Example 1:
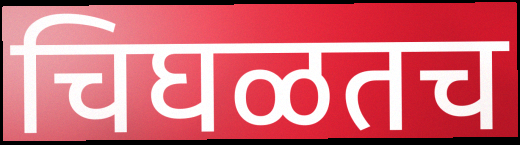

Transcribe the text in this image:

चिघळतच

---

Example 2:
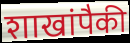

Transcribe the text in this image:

शाखांपैकी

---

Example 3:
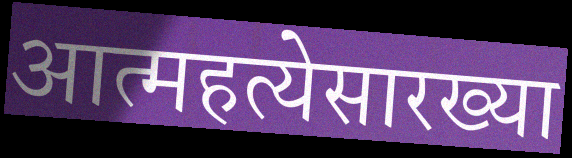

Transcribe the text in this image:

आत्महत्येसारख्या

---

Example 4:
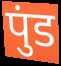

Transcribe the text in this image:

पुंड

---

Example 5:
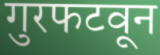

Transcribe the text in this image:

गुरफटवून